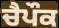
ਚੈਪੌਕ